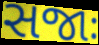
સજાઃ